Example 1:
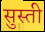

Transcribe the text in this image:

सुस्ती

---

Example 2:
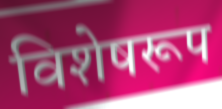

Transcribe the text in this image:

विशेषरूप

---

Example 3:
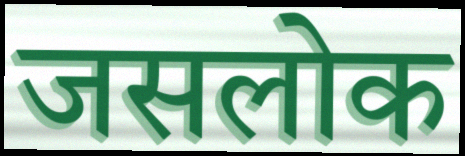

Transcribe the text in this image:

जसलोक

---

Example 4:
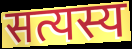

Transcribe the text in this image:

सत्यस्य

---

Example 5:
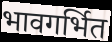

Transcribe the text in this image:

भावगर्भित